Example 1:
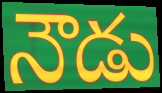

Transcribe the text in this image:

నౌడు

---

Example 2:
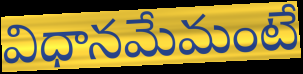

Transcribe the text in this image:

విధానమేమంటే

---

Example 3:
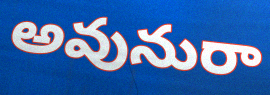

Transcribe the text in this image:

అవునురా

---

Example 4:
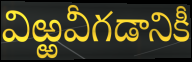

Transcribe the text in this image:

విఱ్ఱవీగడానికీ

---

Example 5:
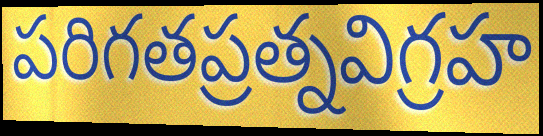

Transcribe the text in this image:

పరిగతప్రత్నవిగ్రహ